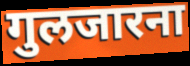
गुलजारना